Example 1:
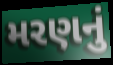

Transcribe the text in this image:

મરણનું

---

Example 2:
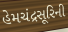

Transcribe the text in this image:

હેમચંદ્રસૂરિની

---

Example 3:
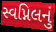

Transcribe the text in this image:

સ્વપ્નિલનું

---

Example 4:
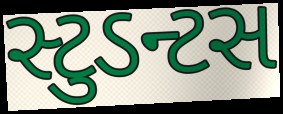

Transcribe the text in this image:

સ્ટુડન્ટસ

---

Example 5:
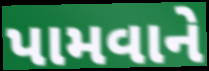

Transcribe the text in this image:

પામવાને